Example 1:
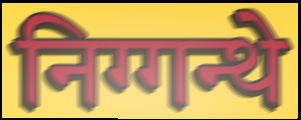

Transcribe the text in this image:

निग्गन्थे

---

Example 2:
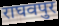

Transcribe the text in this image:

राघवपुर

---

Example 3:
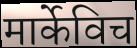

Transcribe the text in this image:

मार्केविच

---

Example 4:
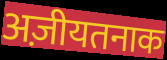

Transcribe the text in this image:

अज़ीयतनाक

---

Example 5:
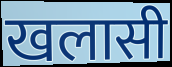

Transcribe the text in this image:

खलासी